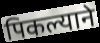
पिकल्याने